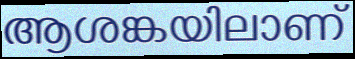
ആശങ്കയിലാണ്